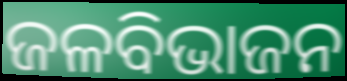
ଜଳବିଭାଜନ